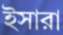
ইসারা